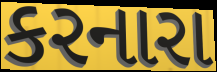
કરનારા